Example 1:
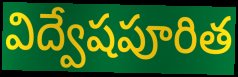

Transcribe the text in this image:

విద్వేషపూరిత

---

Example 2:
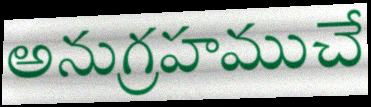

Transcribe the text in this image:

అనుగ్రహముచే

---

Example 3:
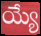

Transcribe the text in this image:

య్యే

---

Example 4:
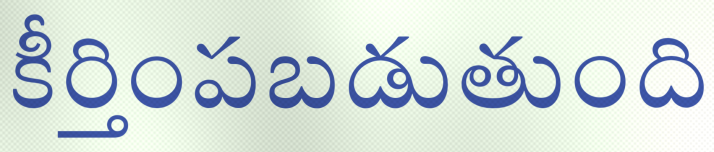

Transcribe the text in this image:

కీర్తింపబడుతుంది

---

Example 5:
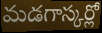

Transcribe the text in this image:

మడగాస్కర్లో